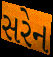
સરેન